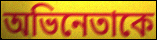
অভিনেতাকে